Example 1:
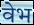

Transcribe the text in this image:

वेभ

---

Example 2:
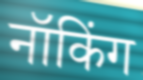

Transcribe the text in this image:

नॉकिंग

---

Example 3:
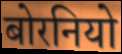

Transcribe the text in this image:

बोरनियो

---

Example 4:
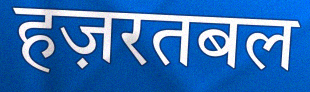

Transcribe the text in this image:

हज़रतबल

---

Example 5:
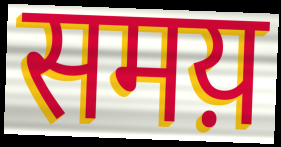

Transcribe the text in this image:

समय़